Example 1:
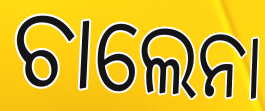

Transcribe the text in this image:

ଚାଲେନା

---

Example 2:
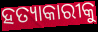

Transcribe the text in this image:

ହତ୍ୟାକାରୀକୁ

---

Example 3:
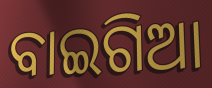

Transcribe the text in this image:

ବାଇଗିଆ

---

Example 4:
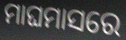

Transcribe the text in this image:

ମାଘମାସରେ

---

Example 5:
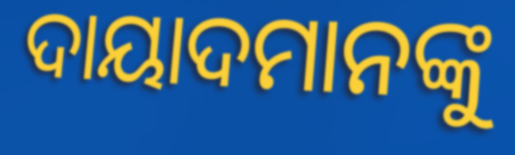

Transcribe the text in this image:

ଦାୟାଦମାନଙ୍କୁ